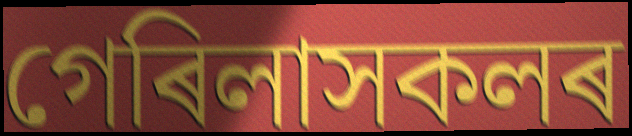
গেৰিলাসকলৰ